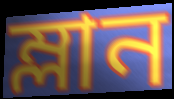
ম্লান